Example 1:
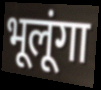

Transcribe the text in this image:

भूलूंगा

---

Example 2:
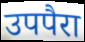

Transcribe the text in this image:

उपपैरा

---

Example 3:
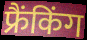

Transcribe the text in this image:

फ्रैंकिंग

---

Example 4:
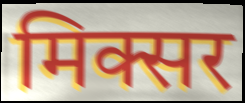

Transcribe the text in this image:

मिक्सर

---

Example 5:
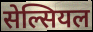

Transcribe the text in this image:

सेल्सियल